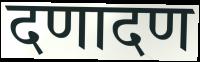
दणादण